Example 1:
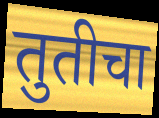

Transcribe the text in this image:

तुतीचा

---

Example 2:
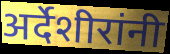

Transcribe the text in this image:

अर्देशीरांनी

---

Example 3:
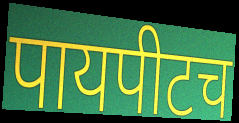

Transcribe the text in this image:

पायपीटच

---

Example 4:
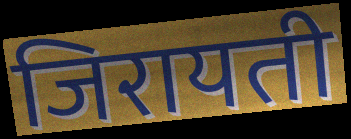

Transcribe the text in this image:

जिरायती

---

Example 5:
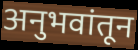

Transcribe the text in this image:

अनुभवांतून